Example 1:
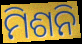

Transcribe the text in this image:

ମିଶନି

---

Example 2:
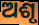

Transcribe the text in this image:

ଅଶୃ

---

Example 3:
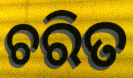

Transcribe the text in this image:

ଚରିତ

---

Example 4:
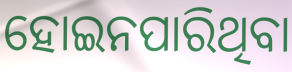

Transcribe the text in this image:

ହୋଇନପାରିଥିବା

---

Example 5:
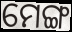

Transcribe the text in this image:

ମେଙ୍ଗ